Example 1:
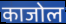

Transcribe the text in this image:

काजोल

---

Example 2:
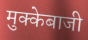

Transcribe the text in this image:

मुक्केबाजी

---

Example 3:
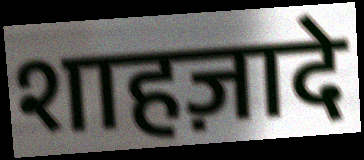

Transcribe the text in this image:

शाहज़ादे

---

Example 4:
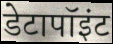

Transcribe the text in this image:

डेटापॉइंट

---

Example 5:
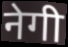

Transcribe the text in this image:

नेगी